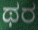
ಥರ